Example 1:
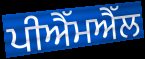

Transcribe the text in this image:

ਪੀਐੱਮਐੱਲ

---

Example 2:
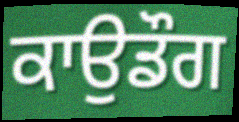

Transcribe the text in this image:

ਕਾਉਡੌਗ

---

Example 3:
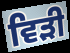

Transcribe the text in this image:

ਵਿੜੀ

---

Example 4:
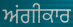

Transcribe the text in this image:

ਅਂਗੀਕਾਰ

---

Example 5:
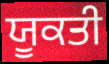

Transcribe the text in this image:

ਯੂਕਤੀ